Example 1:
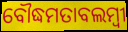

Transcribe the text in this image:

ବୌଦ୍ଧମତାବଲମ୍ବୀ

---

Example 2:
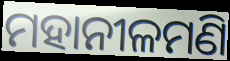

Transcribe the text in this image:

ମହାନୀଳମଣି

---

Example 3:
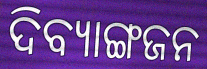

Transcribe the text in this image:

ଦିବ୍ୟାଙ୍ଗଜନ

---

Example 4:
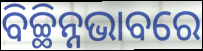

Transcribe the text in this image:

ବିଚ୍ଛିନ୍ନଭାବରେ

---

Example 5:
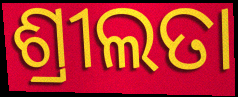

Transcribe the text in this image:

ଶ୍ରୀଲତା